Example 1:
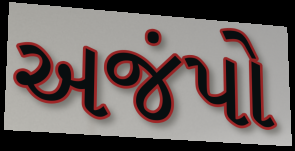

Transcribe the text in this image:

અજંપો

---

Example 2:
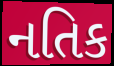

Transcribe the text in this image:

નતિક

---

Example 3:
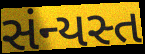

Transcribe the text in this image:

સંન્યસ્ત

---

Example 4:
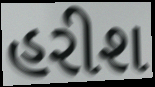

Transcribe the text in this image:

હરીશ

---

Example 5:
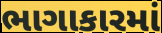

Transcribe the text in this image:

ભાગાકારમાં